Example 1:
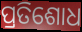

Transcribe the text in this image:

ପ୍ରତିଶୋଧ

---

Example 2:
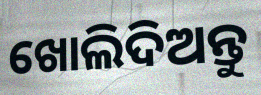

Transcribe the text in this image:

ଖୋଲିଦିଅନ୍ତୁ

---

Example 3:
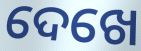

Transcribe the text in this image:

ଦେଖେ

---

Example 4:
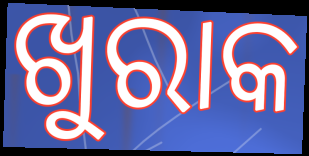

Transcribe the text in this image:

ଖୁରାକ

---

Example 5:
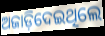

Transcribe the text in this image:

ଅଜାଡ଼ିଦେଇଥିଲେ